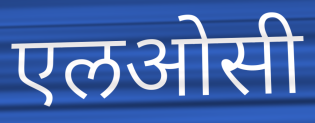
एलओसी